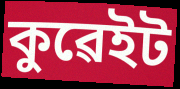
কুৱেইট